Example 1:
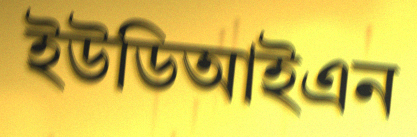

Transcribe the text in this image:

ইউডিআইএন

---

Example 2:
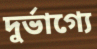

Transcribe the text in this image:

দুর্ভাগ্যে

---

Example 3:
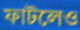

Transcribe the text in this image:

ফাটলেও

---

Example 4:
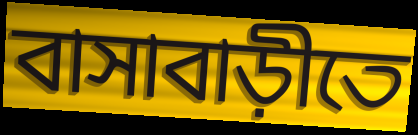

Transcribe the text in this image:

বাসাবাড়ীতে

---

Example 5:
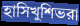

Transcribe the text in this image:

হাসিখুশিভরা